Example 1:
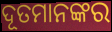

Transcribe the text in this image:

ଦୂତମାନଙ୍କର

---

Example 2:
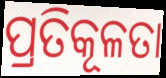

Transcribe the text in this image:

ପ୍ରତିକୂଳତା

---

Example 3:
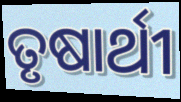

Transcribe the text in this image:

ତୃଷାର୍ଥୀ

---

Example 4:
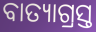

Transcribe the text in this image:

ବାତ୍ୟାଗ୍ରସ୍ତ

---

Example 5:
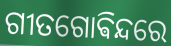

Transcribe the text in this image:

ଗୀତଗୋଵିନ୍ଦରେ